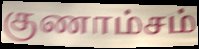
குணாம்சம்